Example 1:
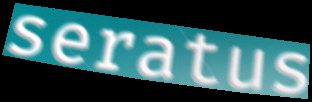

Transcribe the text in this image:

seratus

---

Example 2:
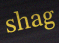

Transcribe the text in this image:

shag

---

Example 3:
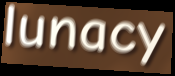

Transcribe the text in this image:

lunacy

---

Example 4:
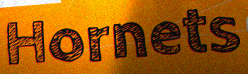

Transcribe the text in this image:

Hornets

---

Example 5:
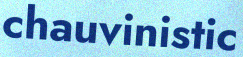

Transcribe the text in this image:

chauvinistic